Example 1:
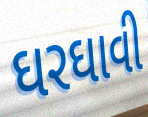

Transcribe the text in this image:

ઘરઘાવી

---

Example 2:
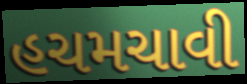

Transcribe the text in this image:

હચમચાવી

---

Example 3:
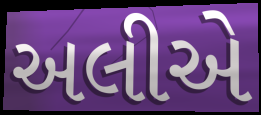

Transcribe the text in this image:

અલીએ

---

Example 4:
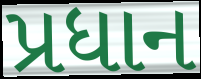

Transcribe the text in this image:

પ્રધાન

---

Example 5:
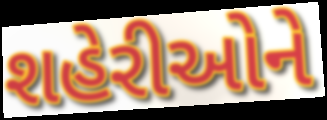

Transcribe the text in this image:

શહેરીઓને